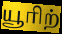
யூரிற்